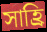
সাহ্রি